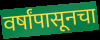
वर्षांपासूनचा